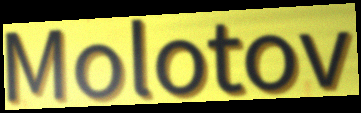
Molotov